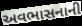
અવભાસનાની